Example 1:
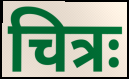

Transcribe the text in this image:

चित्रः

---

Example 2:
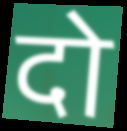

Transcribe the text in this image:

दो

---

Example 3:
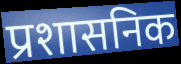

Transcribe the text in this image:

प्रशासनिक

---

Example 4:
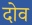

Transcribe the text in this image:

दोव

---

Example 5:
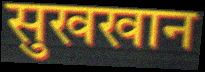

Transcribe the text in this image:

सुखखान